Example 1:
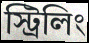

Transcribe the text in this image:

স্ট্রিলিং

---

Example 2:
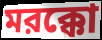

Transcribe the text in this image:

মরক্কো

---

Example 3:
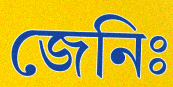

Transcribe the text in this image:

জেনিঃ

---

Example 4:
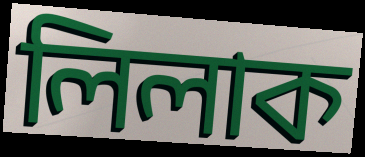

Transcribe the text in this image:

লিলাক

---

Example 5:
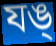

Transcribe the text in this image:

যঙ্